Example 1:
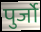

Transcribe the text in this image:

पुर्जो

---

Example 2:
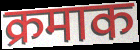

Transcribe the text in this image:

क्रमाक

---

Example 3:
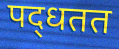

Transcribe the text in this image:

पद्धतत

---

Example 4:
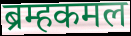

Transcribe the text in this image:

ब्रम्हकमल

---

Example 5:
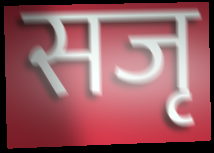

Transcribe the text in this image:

सजृ